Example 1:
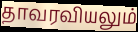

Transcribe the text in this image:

தாவரவியலும்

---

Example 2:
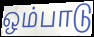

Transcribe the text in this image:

ஒம்பாடு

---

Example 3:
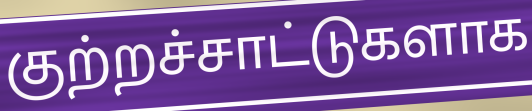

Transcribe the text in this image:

குற்றச்சாட்டுகளாக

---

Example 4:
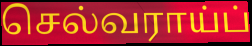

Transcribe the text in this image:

செல்வராய்ப்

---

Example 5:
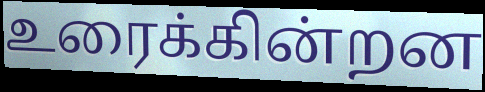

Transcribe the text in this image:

உரைக்கின்றன